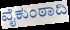
ವೈಕುಂಠಾದಿ